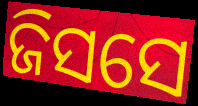
ଜିସସେ